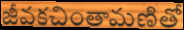
జీవకచింతామణితో